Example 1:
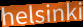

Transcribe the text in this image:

helsinki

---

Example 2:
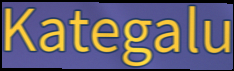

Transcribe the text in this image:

Kategalu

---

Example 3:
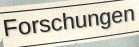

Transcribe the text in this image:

Forschungen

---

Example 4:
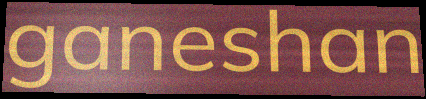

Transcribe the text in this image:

ganeshan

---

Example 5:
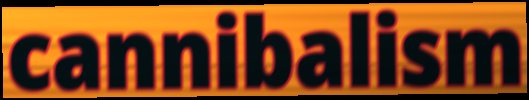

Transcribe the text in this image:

cannibalism